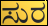
ಸುರ